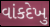
વાંકદેખુ